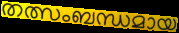
തത്സംബന്ധമായ